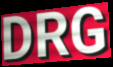
DRG